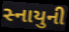
સ્નાયુની